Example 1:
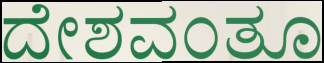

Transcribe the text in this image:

ದೇಶವಂತೂ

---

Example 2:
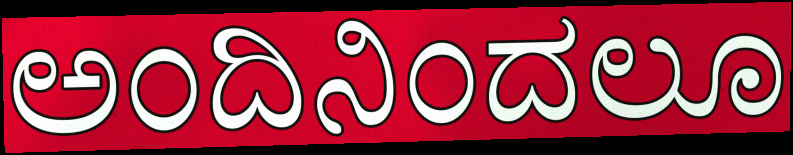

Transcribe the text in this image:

ಅಂದಿನಿಂದಲೂ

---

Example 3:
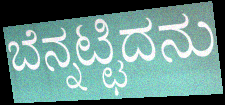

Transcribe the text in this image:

ಬೆನ್ನಟ್ಟಿದನು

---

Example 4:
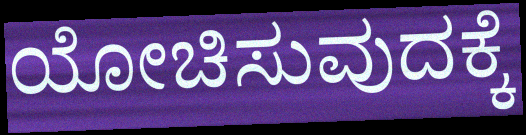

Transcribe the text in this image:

ಯೋಚಿಸುವುದಕ್ಕೆ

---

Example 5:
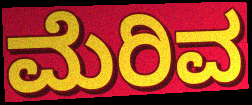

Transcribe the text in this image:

ಮೆರಿವ